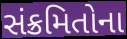
સંક્રમિતોના